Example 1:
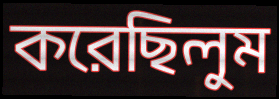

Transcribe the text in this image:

করেছিলুম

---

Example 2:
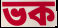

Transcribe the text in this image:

ভক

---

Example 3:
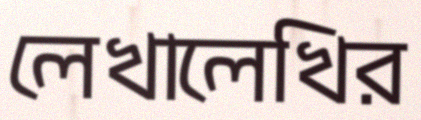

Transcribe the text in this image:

লেখালেখির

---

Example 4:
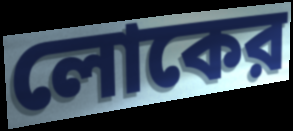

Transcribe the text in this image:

লোকের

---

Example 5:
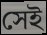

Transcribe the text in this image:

সেই